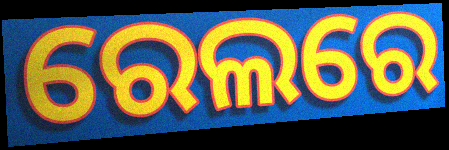
ରେଲରେ